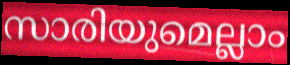
സാരിയുമെല്ലാം